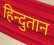
हिन्दुतान